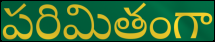
పరిమితంగా